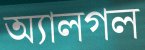
অ্যালগল